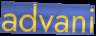
advani